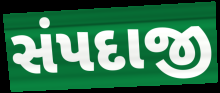
સંપદાજી